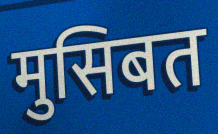
मुसिबत